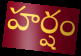
హర్షం